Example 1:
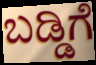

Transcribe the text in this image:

ಬಡ್ಡಿಗೆ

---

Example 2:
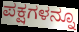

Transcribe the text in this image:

ಪಕ್ಷಗಳನ್ನೂ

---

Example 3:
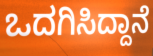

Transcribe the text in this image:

ಒದಗಿಸಿದ್ದಾನೆ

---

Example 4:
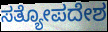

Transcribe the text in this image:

ಸತ್ಯೋಪದೇಶ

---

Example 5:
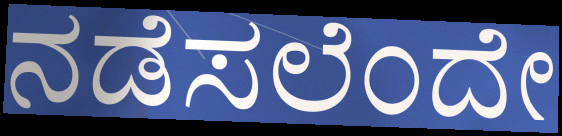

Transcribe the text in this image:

ನಡೆಸಲೆಂದೇ